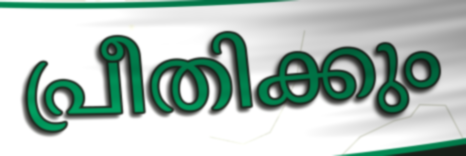
പ്രീതിക്കും